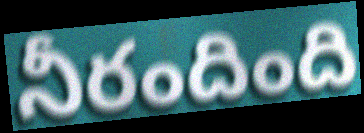
నీరందింది